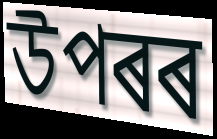
উপৰৰ